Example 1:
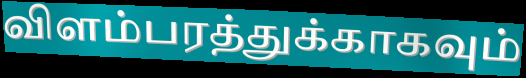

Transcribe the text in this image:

விளம்பரத்துக்காகவும்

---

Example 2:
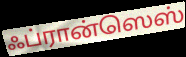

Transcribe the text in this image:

ஃப்ரான்ஸெஸ்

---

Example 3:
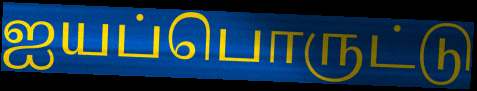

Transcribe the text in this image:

ஐயப்பொருட்டு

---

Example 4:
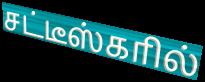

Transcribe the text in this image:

சட்டீஸ்கரில்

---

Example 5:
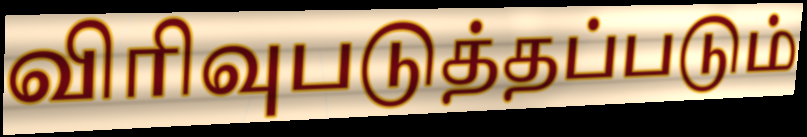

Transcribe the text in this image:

விரிவுபடுத்தப்படும்